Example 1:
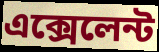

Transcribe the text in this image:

এক্সেলেন্ট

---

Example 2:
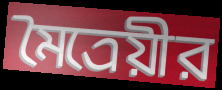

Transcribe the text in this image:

মৈত্রেয়ীর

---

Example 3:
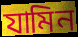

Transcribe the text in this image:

যামিন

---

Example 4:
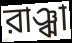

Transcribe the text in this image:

রাঞ্ঝা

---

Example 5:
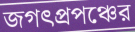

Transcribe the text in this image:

জগৎপ্রপঞ্চের